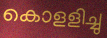
കൊളളിച്ചു